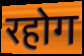
रहोग